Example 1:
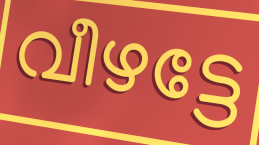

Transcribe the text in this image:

വീഴട്ടേ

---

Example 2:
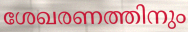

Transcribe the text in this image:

ശേഖരണത്തിനും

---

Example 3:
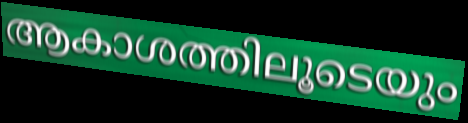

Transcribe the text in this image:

ആകാശത്തിലൂടെയും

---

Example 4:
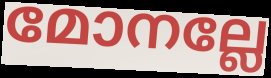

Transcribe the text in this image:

മോനല്ലേ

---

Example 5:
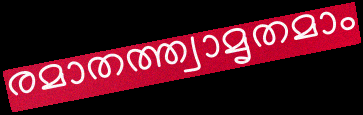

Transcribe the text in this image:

രമാതത്ത്വാമൃതമാം